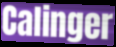
Calinger